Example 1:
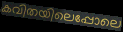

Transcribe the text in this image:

കവിതയിലെപ്പോലെ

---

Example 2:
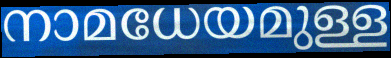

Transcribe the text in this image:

നാമധേയമുള്ള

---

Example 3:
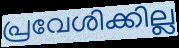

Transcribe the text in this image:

പ്രവേശിക്കില്ല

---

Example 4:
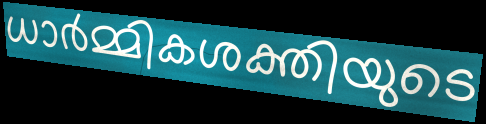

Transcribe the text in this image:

ധാർമ്മികശക്തിയുടെ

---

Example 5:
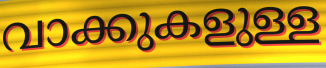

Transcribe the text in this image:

വാക്കുകളുള്ള